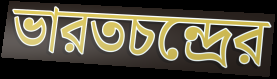
ভারতচন্দ্রের